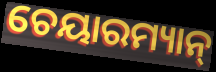
ଚେୟାରମ୍ୟାନ୍